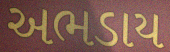
અભડાય